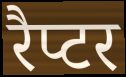
रैप्टर